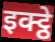
इक्ट्ठे